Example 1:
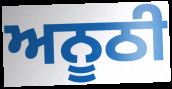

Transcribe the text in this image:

ਅਨੂਠੀ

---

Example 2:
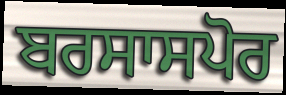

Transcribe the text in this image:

ਬਰਸਾਸਪੋਰ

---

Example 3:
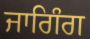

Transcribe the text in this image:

ਜਾਗਿੰਗ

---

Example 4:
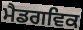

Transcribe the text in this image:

ਮੈਡਗਵਿਕ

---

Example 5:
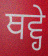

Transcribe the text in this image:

ਥਵ੍ਹੇ